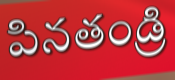
పినతండ్రి